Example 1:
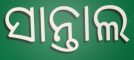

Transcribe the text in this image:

ସାନ୍ତାଲ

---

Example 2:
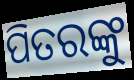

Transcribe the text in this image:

ପିତରଙ୍କୁ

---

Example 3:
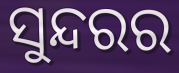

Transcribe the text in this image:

ସୁନ୍ଦରର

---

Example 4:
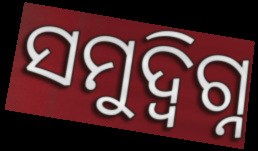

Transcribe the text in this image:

ସମୁଦ୍ବିଗ୍ନ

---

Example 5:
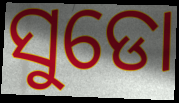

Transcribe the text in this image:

ସୁଡୋ